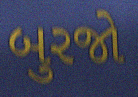
બુરજો